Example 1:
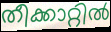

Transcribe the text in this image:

തീക്കാറ്റിൽ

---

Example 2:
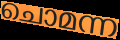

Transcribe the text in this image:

ചൊമന്ന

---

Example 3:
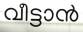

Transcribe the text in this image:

വീട്ടാൻ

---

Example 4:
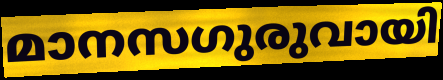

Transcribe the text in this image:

മാനസഗുരുവായി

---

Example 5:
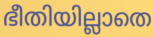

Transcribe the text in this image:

ഭീതിയില്ലാതെ